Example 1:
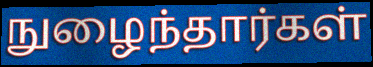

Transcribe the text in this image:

நுழைந்தார்கள்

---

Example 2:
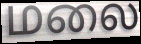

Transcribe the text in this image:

மலை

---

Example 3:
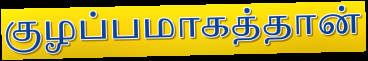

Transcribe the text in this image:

குழப்பமாகத்தான்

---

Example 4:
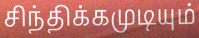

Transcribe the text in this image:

சிந்திக்கமுடியும்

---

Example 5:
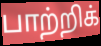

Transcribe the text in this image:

பாற்றிக்